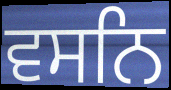
ਵਸਨਿ